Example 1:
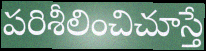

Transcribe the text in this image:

పరిశీలించిచూస్తే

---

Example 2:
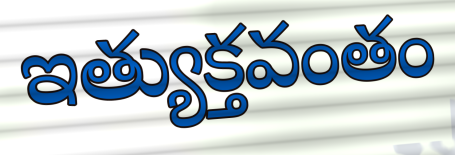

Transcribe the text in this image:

ఇత్యుక్తవంతం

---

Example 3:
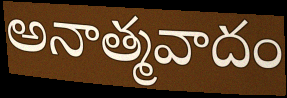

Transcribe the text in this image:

అనాత్మవాదం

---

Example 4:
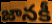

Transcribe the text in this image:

జానకీ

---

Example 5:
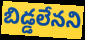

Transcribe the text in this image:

బిడ్డలేనని